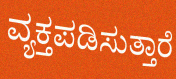
ವ್ಯಕ್ತಪಡಿಸುತ್ತಾರೆ